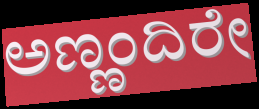
ಅಣ್ಣಂದಿರೇ